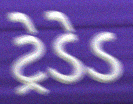
ટ્રેડેડ